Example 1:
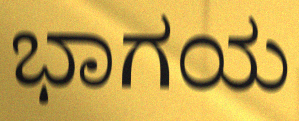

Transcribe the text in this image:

ಭಾಗಯ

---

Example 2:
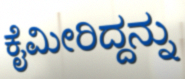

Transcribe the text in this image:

ಕೈಮೀರಿದ್ದನ್ನು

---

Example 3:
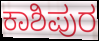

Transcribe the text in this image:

ಕಾಶಿಪುರ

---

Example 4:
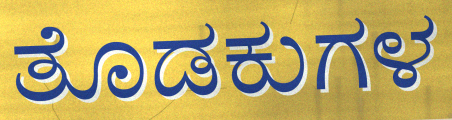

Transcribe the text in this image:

ತೊಡಕುಗಳ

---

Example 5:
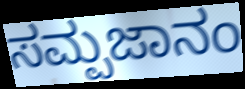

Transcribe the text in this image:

ಸಮ್ಪಜಾನಂ